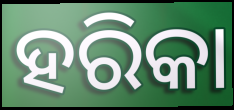
ହରିକା